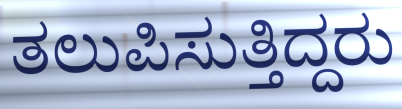
ತಲುಪಿಸುತ್ತಿದ್ದರು